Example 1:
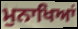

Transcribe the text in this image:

ਮੁਨਾਖਿਆਂ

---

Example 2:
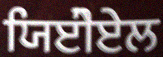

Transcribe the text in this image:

ਯਿਈੇਏਲ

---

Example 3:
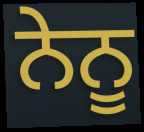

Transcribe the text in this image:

ਨੇਨੂ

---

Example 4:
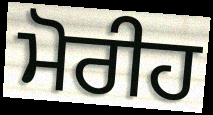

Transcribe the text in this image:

ਮੋਰੀਹ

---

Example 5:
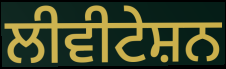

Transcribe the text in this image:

ਲੀਵੀਟੇਸ਼ਨ